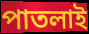
পাতলাই